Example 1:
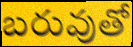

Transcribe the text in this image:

బరువుతో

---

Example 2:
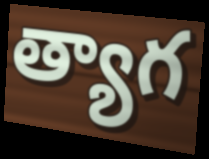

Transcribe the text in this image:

త్యాగ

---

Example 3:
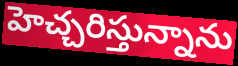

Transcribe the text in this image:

హెచ్చరిస్తున్నాను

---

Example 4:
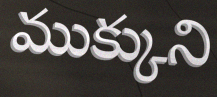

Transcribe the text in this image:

ముక్కుని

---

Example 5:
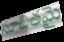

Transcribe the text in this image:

సూచితమై